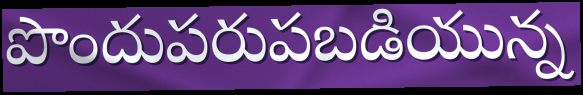
పొందుపరుపబడియున్న